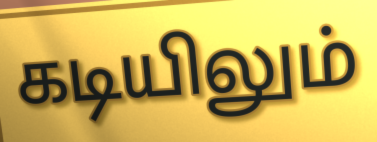
கடியிலும்